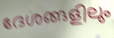
ദേശങ്ങളിലും